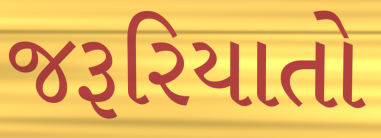
જરૂરિયાતો